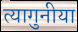
त्यागुनीया